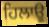
ਹਿਲਾਊ